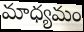
మాధ్యమం